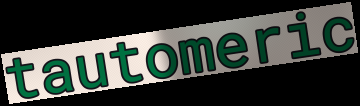
tautomeric